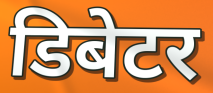
डिबेटर